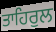
ਤਾਹਿਰੁਲ